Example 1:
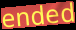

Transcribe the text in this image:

ended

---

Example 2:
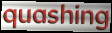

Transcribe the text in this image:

quashing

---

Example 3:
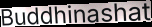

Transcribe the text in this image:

Buddhinashat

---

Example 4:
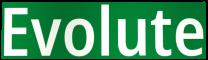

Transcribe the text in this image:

Evolute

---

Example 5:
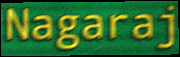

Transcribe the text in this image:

Nagaraj